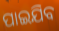
ପାଇଯିବ